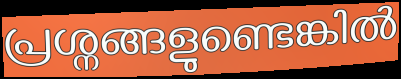
പ്രശ്നങ്ങളുണ്ടെങ്കിൽ